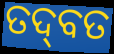
ତଦ୍‍ବତ